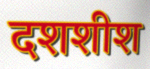
दशशीश